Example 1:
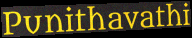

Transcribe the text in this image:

Punithavathi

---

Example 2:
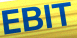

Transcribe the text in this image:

EBIT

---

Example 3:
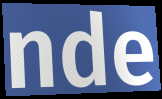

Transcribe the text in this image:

nde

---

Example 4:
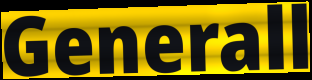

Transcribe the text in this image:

Generall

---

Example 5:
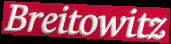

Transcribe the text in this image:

Breitowitz